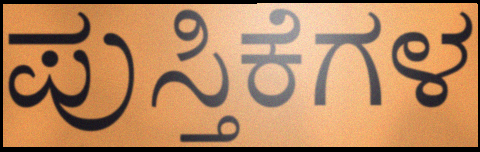
ಪುಸ್ತಿಕೆಗಳ